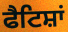
ਫੈਟਿਸ਼ਾਂ